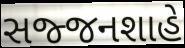
સજ્જનશાહે